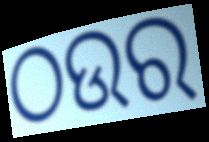
ଠଉର